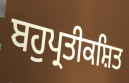
ਬਹੁਪ੍ਰਤੀਕਸ਼ਿਤ